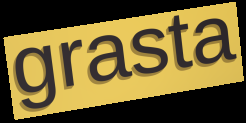
grasta